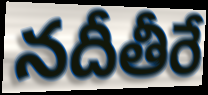
నదీతీరే